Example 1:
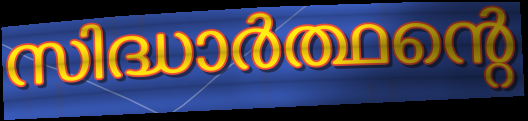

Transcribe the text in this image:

സിദ്ധാർത്ഥന്റെ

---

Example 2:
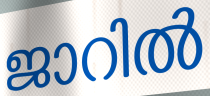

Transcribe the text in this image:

ജാറിൽ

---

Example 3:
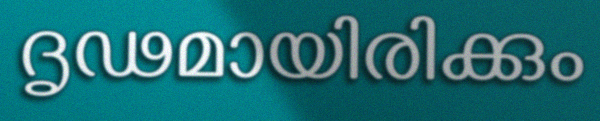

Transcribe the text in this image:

ദൃഢമായിരിക്കും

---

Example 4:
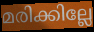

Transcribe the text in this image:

മരിക്കില്ലേ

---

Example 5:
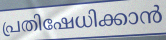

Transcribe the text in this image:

പ്രതിഷേധിക്കാൻ